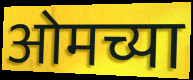
ओमच्या